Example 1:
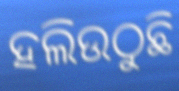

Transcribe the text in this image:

ହଲିଉଠୁଛି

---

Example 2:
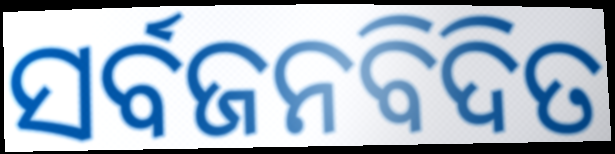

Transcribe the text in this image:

ସର୍ବଜନବିଦିତ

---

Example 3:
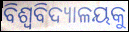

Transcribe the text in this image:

ବିଶ୍ବବିଦ୍ୟାଳୟକୁ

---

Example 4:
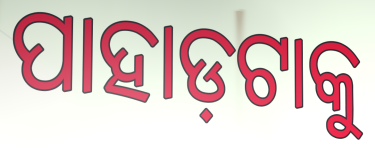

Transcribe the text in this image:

ପାହାଡ଼ଟାକୁ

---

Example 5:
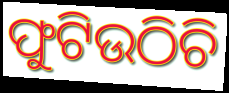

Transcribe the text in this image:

ଫୁଟିଉଠିଚି